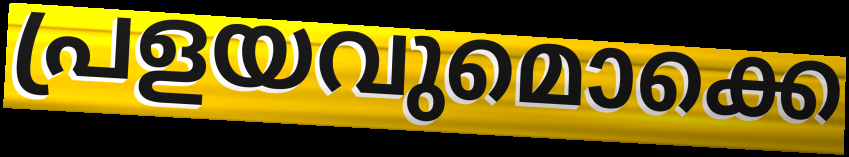
പ്രളയവുമൊക്കെ